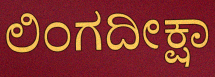
ಲಿಂಗದೀಕ್ಷಾ